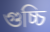
গুচ্চি